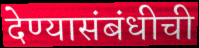
देण्यासंबंधीची